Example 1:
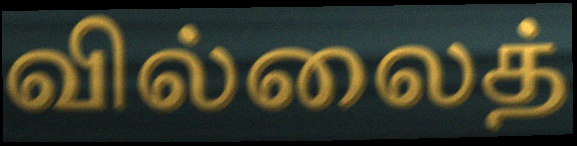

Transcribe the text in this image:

வில்லைத்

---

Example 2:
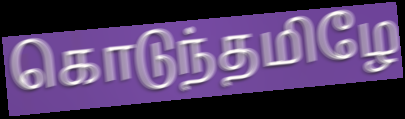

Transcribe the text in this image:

கொடுந்தமிழே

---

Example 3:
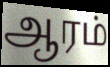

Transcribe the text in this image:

ஆரம்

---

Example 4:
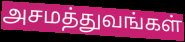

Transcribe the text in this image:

அசமத்துவங்கள்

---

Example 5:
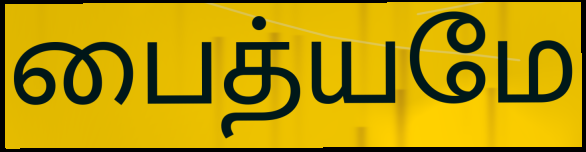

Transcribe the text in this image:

பைத்யமே